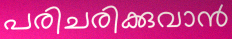
പരിചരിക്കുവാൻ